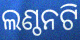
ଲଣ୍ଠନଟି